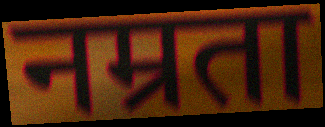
नम्रता